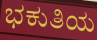
ಭಕುತಿಯ